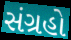
સંગ્રહો